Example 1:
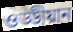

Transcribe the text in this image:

ওড্ডীয়ান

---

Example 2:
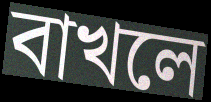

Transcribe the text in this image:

বাখলে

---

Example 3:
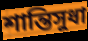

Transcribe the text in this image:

শান্তিসুধা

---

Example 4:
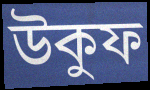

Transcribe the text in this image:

উকুফ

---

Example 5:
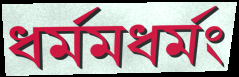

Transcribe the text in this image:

ধর্মমধর্মং